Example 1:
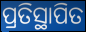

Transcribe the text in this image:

ପ୍ରତିସ୍ଥାପିତ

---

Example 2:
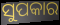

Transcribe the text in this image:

ସୁପକାର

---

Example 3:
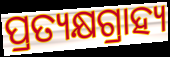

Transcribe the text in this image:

ପ୍ରତ୍ୟକ୍ଷଗ୍ରାହ୍ୟ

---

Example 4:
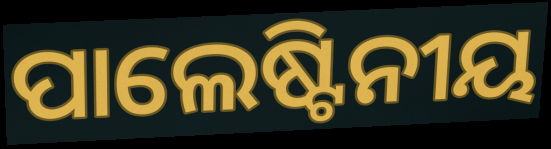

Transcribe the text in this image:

ପାଲେଷ୍ଟିନୀୟ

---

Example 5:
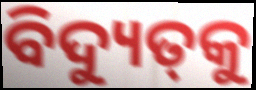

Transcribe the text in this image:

ବିଦ୍ୟୁତ୍‌କୁ